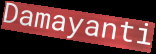
Damayanti